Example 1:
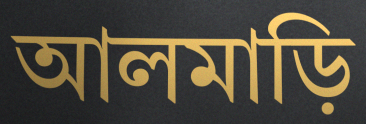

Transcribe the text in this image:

আলমাড়ি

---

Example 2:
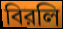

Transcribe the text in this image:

বিরলি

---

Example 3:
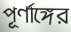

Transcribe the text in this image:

পূর্ণাঙ্গের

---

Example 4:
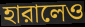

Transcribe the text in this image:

হারালেও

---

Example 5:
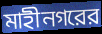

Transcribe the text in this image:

মাহীনগরের